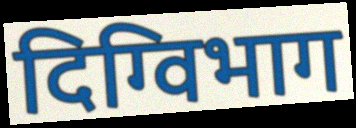
दिग्विभाग